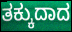
ತಕ್ಕುದಾದ